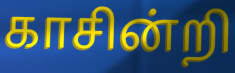
காசின்றி